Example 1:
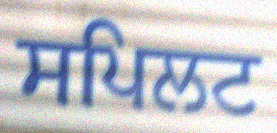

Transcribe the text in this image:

ਸਪਿਲਟ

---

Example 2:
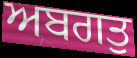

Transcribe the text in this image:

ਅਬਗਤੁ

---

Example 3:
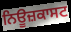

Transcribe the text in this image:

ਨਿਊਜ਼ਕਾਸਟ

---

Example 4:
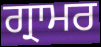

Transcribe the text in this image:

ਗ੍ਰਾਮਰ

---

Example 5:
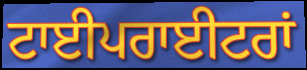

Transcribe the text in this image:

ਟਾਈਪਰਾਈਟਰਾਂ